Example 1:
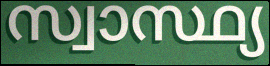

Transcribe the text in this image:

സ്വാസ്ഥ്യ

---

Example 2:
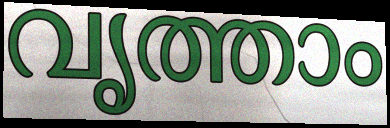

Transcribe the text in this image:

വൃത്താം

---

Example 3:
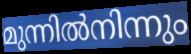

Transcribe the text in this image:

മുന്നിൽനിന്നും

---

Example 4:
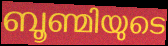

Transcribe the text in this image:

ബൂണ്മിയുടെ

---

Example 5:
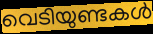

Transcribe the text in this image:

വെടിയുണ്ടകൾ